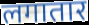
लगातार